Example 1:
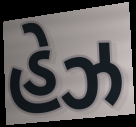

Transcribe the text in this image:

હેઝ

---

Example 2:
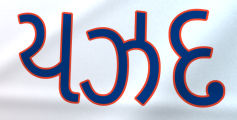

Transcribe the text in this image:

યઝદ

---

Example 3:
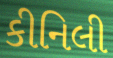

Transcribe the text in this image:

કીનિલી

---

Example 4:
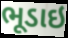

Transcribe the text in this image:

ભૂડાઇ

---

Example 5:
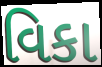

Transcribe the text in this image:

વિકા